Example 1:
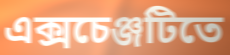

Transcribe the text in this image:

এক্সচেঞ্জটিতে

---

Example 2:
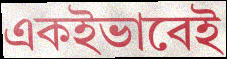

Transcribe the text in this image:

একইভাবেই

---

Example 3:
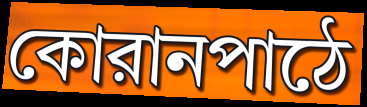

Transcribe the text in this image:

কোরানপাঠে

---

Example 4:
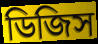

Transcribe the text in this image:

ডিজিস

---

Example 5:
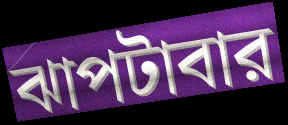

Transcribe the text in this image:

ঝাপটাবার